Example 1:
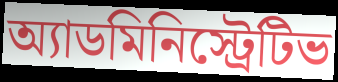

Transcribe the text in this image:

অ্যাডমিনিস্ট্রেটিভ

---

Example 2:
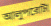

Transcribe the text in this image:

আলুপরোটা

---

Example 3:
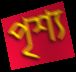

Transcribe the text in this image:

পৃশ্য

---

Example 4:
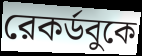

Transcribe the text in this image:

রেকর্ডবুকে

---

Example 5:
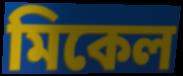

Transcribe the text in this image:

মিকেল